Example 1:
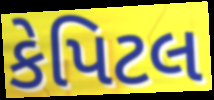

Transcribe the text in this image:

કેપિટલ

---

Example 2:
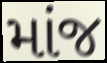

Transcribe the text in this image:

માંજ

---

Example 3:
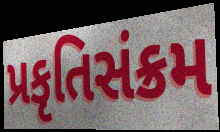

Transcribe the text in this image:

પ્રકૃતિસંક્રમ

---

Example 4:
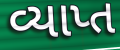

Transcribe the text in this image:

વ્યાપ્ત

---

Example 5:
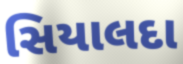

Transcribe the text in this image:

સિયાલદા